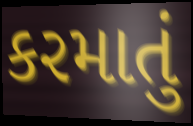
કરમાતું